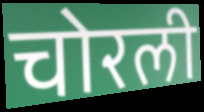
चोरली